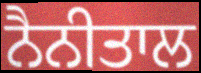
ਨੈਨੀਤਾਲ